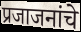
प्रजाजनांचे